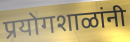
प्रयोगशाळांनी